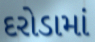
દરોડામાં